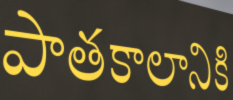
పాతకాలానికి